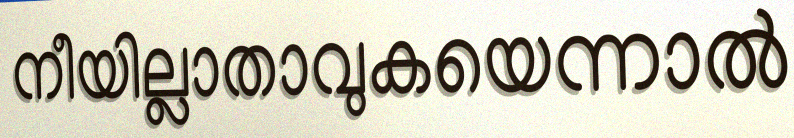
നീയില്ലാതാവുകയെന്നാൽ